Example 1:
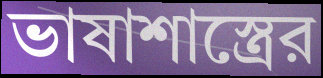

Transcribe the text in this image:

ভাষাশাস্ত্রের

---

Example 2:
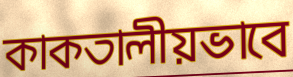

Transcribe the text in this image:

কাকতালীয়ভাবে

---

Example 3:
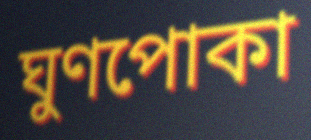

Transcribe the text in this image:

ঘুণপোকা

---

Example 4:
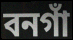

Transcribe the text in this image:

বনগাঁ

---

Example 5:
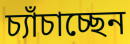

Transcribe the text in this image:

চ্যাঁচাচ্ছেন